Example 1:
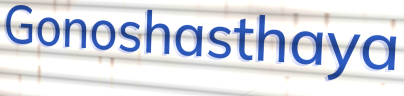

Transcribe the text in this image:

Gonoshasthaya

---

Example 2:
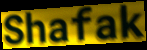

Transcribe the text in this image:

Shafak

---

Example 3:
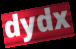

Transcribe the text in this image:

dydx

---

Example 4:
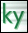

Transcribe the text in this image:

ky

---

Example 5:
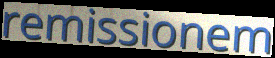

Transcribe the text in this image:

remissionem